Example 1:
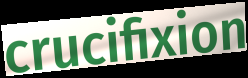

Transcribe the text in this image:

crucifixion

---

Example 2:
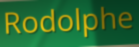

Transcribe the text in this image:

Rodolphe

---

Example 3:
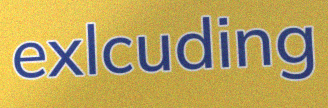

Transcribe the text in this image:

exlcuding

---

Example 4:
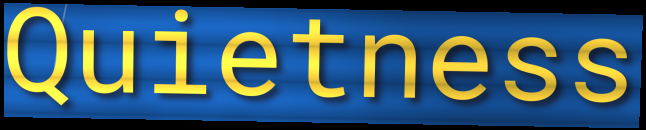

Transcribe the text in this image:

Quietness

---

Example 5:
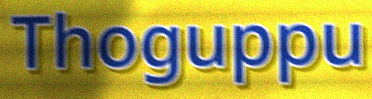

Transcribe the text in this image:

Thoguppu